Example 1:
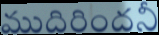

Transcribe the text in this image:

ముదిరిందనీ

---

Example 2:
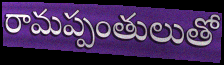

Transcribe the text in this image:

రామప్పంతులుతో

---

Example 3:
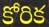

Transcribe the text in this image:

కోరిక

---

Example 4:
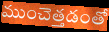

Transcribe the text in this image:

ముంచెత్తడంతో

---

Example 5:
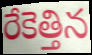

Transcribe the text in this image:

రేకెత్తిన